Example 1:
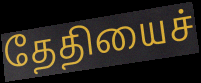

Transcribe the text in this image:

தேதியைச்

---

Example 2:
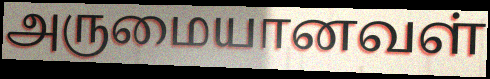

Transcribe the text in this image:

அருமையானவள்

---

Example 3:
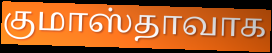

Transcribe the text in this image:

குமாஸ்தாவாக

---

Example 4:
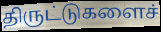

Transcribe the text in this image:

திருட்டுகளைச்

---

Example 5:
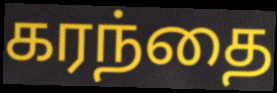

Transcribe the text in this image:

கரந்தை